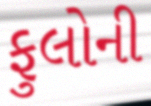
ફુલોની